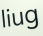
liug